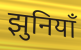
झुनियाँ